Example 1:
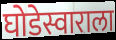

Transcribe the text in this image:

घोडेस्वाराला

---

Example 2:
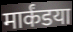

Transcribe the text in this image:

मार्कंडया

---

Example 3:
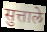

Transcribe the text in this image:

सुत्ताले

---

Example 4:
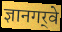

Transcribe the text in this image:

ज्ञानगर्वे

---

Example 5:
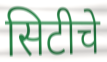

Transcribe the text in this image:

सिटीचे